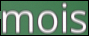
mois